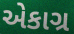
એકાગ્ર